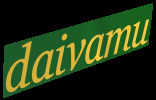
daivamu